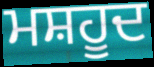
ਮਸ਼ਹੂਦ